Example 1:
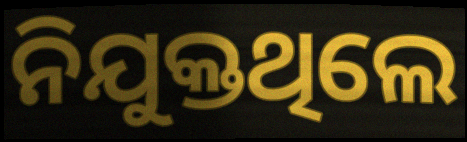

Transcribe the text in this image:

ନିଯୁକ୍ତଥିଲେ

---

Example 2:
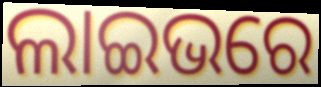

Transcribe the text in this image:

ଲାଇଭରେ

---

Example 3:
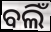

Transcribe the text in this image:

ବଲିଁ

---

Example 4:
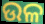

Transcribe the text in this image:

ଉଳ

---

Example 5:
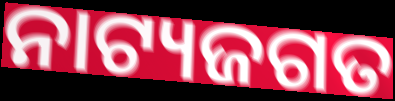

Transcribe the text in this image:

ନାଟ୍ୟଜଗତ